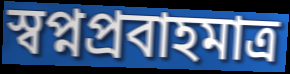
স্বপ্নপ্রবাহমাত্র